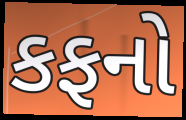
કફનો